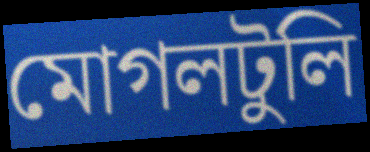
মোগলটুলি